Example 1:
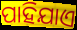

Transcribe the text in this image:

ପାହିଯାଏ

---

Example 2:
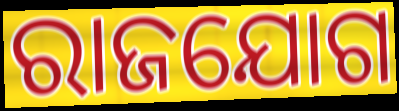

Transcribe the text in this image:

ରାଜଯୋଗ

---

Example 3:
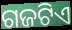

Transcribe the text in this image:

ଗଜଟିଏ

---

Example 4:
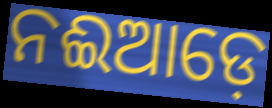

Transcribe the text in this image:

ନଈଆଡ଼େ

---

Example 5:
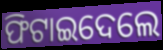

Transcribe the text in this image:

ଫିଟାଇଦେଲେ